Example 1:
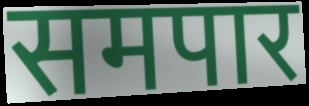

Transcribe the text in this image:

समपार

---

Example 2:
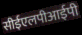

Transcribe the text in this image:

सीईएलपीआईपी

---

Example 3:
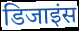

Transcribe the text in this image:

डिजाइंस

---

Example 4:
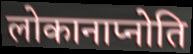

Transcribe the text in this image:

लोकानाप्नोति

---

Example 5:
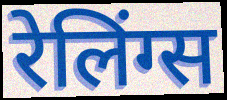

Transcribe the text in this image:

रेलिंग्स